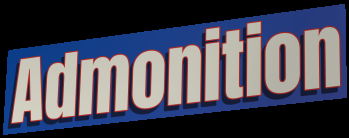
Admonition